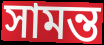
সামন্ত